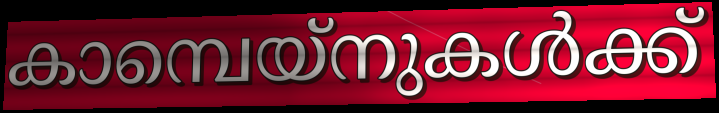
കാമ്പെയ്നുകൾക്ക്